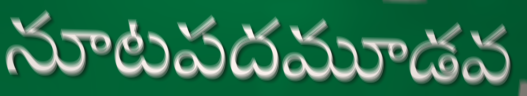
నూటపదమూడవ